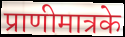
प्राणीमात्रके